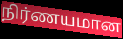
நிர்ணயமான